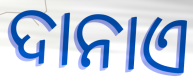
ଦାନାଏ